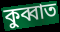
কুব্বাত